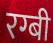
रग्‍बी